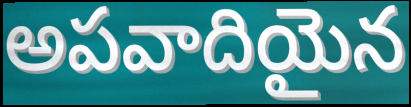
అపవాదియైన